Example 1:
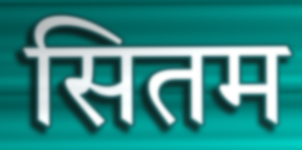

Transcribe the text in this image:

सितम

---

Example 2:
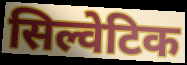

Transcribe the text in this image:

सिल्वेटिक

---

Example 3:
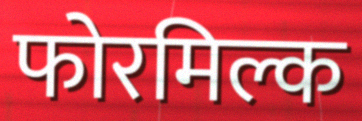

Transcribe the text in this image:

फोरमिल्क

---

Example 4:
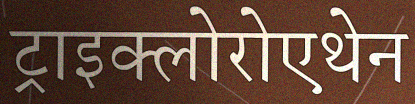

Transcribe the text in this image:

ट्राइक्लोरोएथेन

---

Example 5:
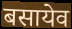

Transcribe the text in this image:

बसायेव